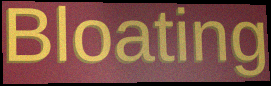
Bloating